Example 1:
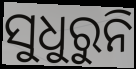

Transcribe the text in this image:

ସୁଧୁରୁନି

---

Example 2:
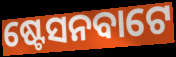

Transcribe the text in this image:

ଷ୍ଟେସନବାଟେ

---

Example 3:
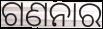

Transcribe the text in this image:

ଗଣନାର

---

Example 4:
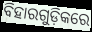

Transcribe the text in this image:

ବିହାରଗୁଡ଼ିକରେ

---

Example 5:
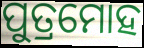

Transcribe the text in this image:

ପୁତ୍ରମୋହ